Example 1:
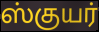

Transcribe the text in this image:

ஸ்குயர்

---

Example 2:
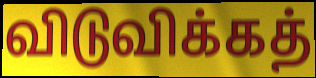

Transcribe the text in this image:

விடுவிக்கத்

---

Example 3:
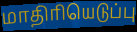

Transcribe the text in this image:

மாதிரியெடுப்பு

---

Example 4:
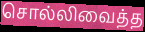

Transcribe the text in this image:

சொல்லிவைத்த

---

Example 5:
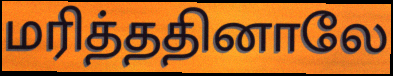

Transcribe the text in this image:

மரித்ததினாலே